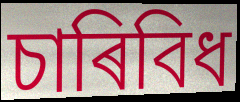
চাৰিবিধ